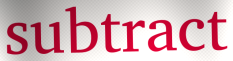
subtract